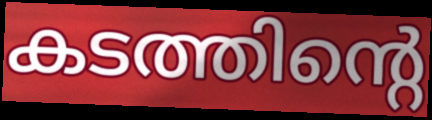
കടത്തിന്റെ